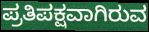
ಪ್ರತಿಪಕ್ಷವಾಗಿರುವ